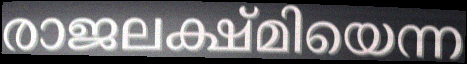
രാജലക്ഷ്മിയെന്ന